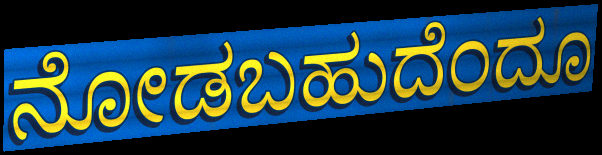
ನೋಡಬಹುದೆಂದೂ